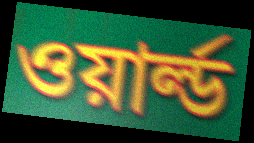
ওয়ার্ল্ড